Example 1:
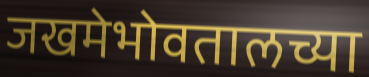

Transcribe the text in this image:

जखमेभोवतालच्या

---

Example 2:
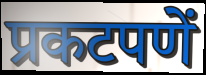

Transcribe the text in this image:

प्रकटपणें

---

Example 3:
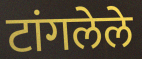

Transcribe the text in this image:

टांगलेले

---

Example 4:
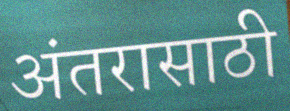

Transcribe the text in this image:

अंतरासाठी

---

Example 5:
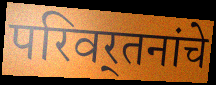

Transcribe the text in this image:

परिवर्तनांचे